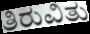
ತಿರುವಿತು